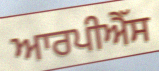
ਆਰਪੀਐੱਸ